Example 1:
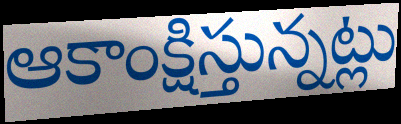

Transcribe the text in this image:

ఆకాంక్షిస్తున్నట్లు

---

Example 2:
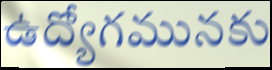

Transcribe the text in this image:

ఉద్యోగమునకు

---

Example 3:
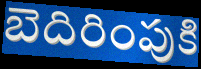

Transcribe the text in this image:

బెదిరింపుకి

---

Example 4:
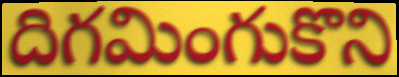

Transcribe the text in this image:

దిగమింగుకొని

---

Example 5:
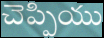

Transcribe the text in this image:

చెప్పియు